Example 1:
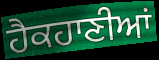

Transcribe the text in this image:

ਹੈਕਹਾਣੀਆਂ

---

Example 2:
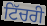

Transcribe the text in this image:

ਟਿੱਚਰੀ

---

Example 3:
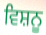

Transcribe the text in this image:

ਵਿਸ਼ਨੂ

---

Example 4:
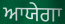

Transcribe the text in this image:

ਆਯੇਗਾ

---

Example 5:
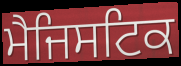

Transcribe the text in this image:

ਮੈਜਿਸਟਿਕ